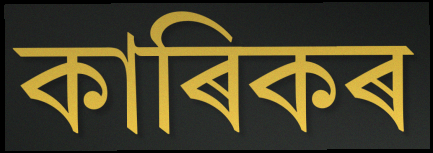
কাৰিকৰ